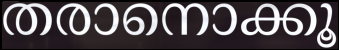
തരാനൊക്കൂ